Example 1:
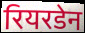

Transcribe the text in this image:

रियरडेन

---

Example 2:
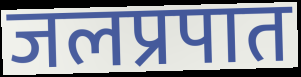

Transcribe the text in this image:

जलप्रपात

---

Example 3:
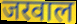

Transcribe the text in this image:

जरवाल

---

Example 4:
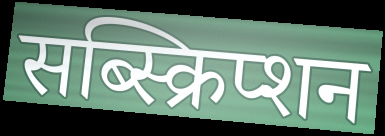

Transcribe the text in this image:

सब्स्क्रिप्शन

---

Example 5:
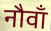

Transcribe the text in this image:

नौवाँ